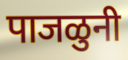
पाजळुनी